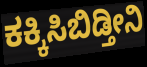
ಕಕ್ಕಿಸಿಬಿಡ್ತೀನಿ